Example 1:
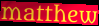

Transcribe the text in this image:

matthew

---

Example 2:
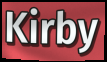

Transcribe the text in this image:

Kirby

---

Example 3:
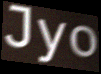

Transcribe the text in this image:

Jyo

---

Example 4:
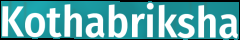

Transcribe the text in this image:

Kothabriksha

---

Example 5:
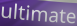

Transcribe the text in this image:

ultimate